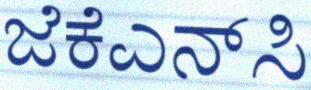
ಜೆಕೆಎನ್‌ಸಿ